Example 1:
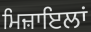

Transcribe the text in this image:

ਮਿਜ਼ਾਇਲਾਂ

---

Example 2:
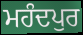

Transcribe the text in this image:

ਮਹੰਦਪੁਰ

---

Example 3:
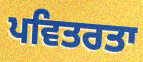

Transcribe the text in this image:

ਪਵਿਤਰਤਾ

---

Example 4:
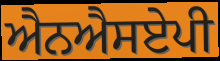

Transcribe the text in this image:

ਐਨਐਸਏਪੀ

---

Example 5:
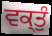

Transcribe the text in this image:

ਵਕ੍ਤੁੰ